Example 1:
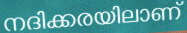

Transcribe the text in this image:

നദിക്കരയിലാണ്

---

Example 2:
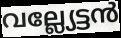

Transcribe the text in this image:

വല്ല്യേട്ടൻ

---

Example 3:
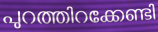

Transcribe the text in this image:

പുറത്തിറക്കേണ്ടി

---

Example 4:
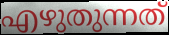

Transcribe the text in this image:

എഴുതുന്നത്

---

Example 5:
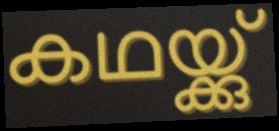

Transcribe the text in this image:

കഥയ്ക്കു്